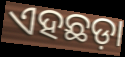
ଏହଛଡ଼ା